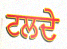
ਟਲਦੇ